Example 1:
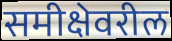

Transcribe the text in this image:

समीक्षेवरील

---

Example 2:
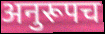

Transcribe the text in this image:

अनुरूपच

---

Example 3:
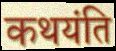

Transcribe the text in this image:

कथयंति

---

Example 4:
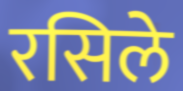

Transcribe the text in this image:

रसिले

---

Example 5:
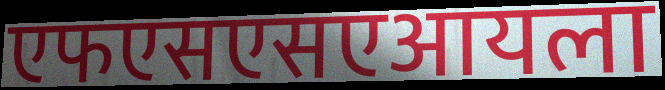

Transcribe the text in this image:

एफएसएसएआयला